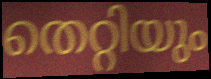
തെറ്റിയും